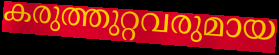
കരുത്തുറ്റവരുമായ